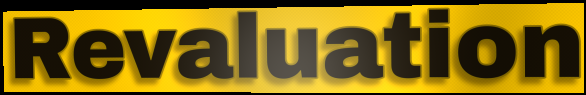
Revaluation